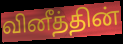
வினீத்தின்